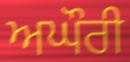
ਅਘੌਰੀ